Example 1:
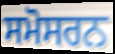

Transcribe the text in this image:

ਸਮੋਸਰਨ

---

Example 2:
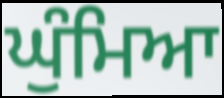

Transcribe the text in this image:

ਘੁੰਮਿਆ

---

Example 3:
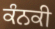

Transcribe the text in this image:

ਕੰਨਕੀ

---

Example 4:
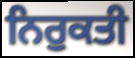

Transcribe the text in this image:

ਨਿਰੁਕਤੀ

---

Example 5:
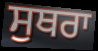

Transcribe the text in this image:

ਸੁਥਰਾ